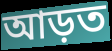
আড়ত